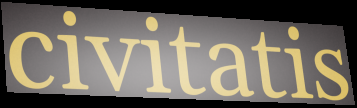
civitatis